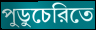
পুডুচেরিতে